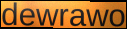
dewrawo